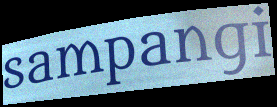
sampangi